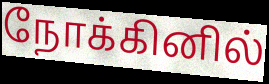
நோக்கினில்